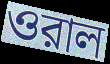
ওরাল